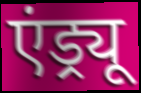
एंड्र्यू